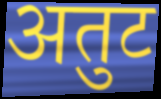
अतुट